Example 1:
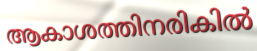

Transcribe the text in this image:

ആകാശത്തിനരികിൽ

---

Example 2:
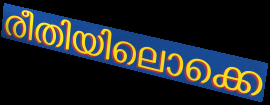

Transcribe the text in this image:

രീതിയിലൊക്കെ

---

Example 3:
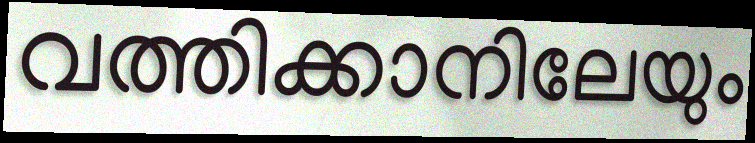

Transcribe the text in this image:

വത്തിക്കാനിലേയും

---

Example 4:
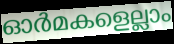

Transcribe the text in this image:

ഓർമകളെല്ലാം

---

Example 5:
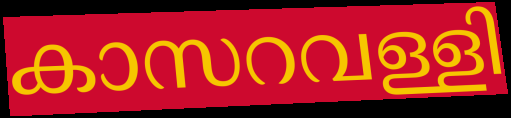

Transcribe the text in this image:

കാസറവള്ളി